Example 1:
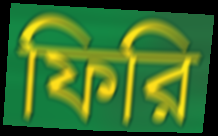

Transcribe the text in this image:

ফিরি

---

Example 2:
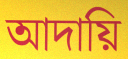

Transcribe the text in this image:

আদায়ি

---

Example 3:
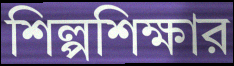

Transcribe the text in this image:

শিল্পশিক্ষার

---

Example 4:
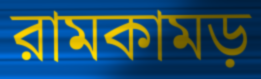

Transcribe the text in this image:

রামকামড়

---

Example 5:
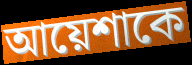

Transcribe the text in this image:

আয়েশাকে